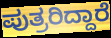
ಪುತ್ರರಿದ್ದಾರೆ